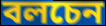
বলচেন